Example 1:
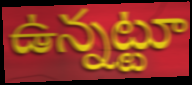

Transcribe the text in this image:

ఉన్నట్టూ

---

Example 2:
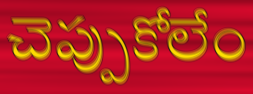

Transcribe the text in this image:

చెప్పుకోలేం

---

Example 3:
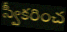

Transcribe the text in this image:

స్వీకరించ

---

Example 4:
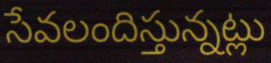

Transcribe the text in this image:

సేవలందిస్తున్నట్లు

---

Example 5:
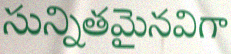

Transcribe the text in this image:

సున్నితమైనవిగా